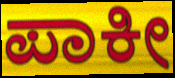
ಪಾಕೀ